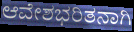
ಆವೇಶಭರಿತನಾಗಿ